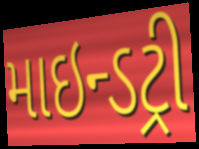
માઇન્ડટ્રી